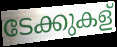
ടേക്കുകള്